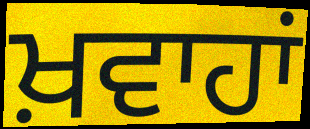
ਖ਼ਵਾਹਾਂ